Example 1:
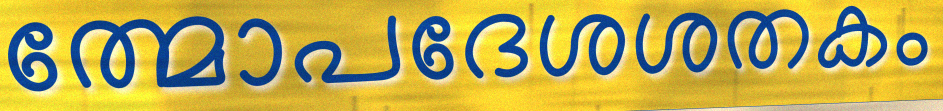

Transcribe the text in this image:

ത്മോപദേശശതകം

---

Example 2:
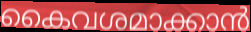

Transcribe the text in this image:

കൈവശമാക്കാൻ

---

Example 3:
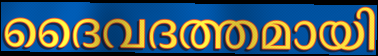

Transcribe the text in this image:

ദൈവദത്തമായി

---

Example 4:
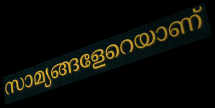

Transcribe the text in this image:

സാമ്യങ്ങളേറെയാണ്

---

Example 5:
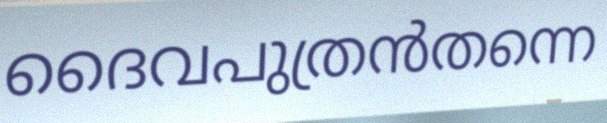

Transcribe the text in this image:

ദൈവപുത്രൻതന്നെ